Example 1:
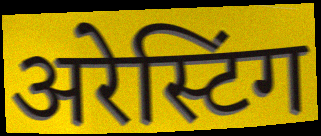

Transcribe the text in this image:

अरेस्टिंग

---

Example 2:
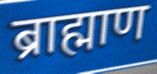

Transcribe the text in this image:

ब्राह्माण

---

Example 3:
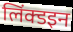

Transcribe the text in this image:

लिंक्‍डइन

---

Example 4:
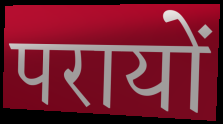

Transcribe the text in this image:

परायों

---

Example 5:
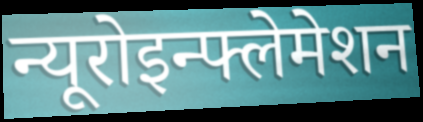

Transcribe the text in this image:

न्यूरोइन्फ्लेमेशन